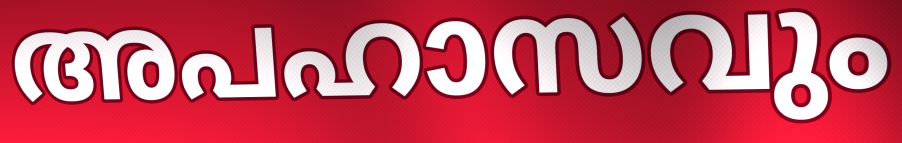
അപഹാസവും